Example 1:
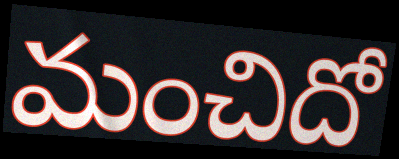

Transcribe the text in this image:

మంచిదో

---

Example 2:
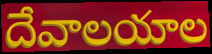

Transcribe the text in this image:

దేవాలయాల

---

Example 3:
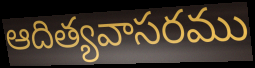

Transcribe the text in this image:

ఆదిత్యవాసరము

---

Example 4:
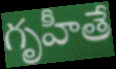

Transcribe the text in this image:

గృహీతే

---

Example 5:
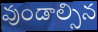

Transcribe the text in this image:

వుండాల్సిన